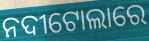
ନଦୀଟୋଲାରେ